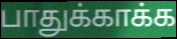
பாதுக்காக்க